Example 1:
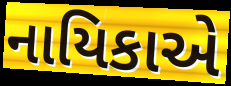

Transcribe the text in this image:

નાયિકાએ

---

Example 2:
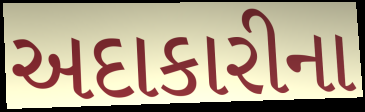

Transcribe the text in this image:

અદાકારીના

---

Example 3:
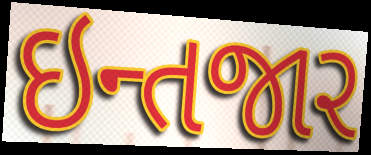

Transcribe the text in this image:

ઇન્તજાર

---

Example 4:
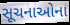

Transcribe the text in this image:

સૂચનાઓના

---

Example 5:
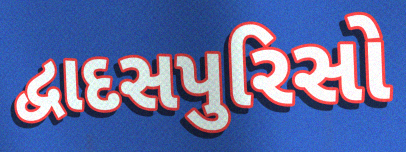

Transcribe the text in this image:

દ્વાદસપુરિસો